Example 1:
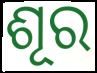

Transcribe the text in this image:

ଶୂର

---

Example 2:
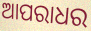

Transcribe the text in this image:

ଆପରାଧର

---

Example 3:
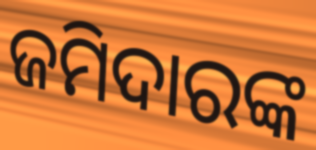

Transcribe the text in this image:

ଜମିଦାରଙ୍କ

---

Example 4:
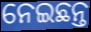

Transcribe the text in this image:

ନେଇଛନ୍ତ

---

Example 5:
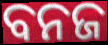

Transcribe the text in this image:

ବନଜ